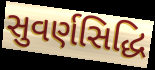
સુવર્ણસિદ્ધિ